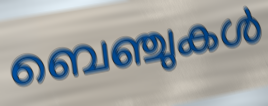
ബെഞ്ചുകൾ